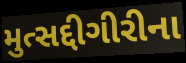
મુત્સદ્દીગીરીના